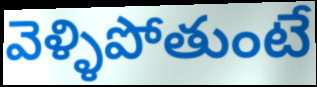
వెళ్ళిపోతుంటే